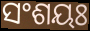
ସଂଶୟଃ